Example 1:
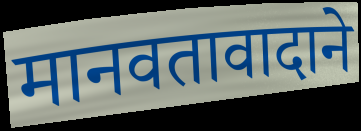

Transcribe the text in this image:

मानवतावादाने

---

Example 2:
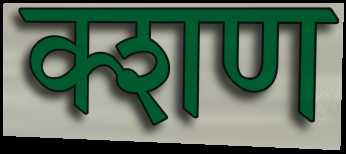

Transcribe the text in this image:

क्शण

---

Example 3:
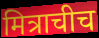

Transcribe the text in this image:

मित्राचीच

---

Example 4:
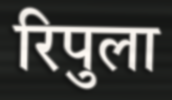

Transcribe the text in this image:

रिपुला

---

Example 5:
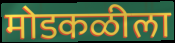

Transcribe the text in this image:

मोडकळीला